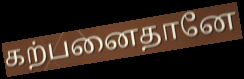
கற்பனைதானே